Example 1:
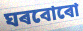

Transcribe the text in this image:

ঘৰবোৰো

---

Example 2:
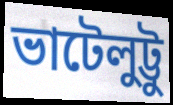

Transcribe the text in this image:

ভাটেলুট্টু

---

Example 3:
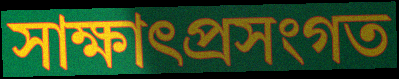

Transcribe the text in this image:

সাক্ষাৎপ্ৰসংগত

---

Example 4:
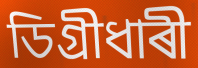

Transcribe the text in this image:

ডিগ্ৰীধাৰী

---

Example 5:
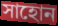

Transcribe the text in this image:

সাহোন